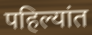
पहिल्यांत